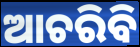
ଆଚରିବି